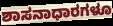
ಶಾಸನಾಧಾರಗಳೂ